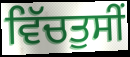
ਵਿੱਚਤੁਸੀਂ